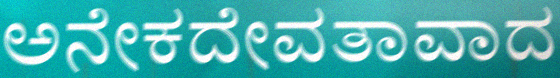
ಅನೇಕದೇವತಾವಾದ